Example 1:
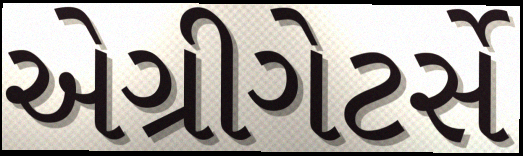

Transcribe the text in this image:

એગ્રીગેટર્સે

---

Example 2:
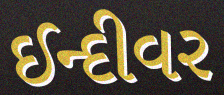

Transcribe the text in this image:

ઈન્દીવર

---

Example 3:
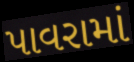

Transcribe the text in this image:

પાવરામાં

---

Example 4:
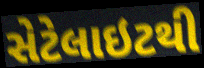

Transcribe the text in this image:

સેટેલાઇટથી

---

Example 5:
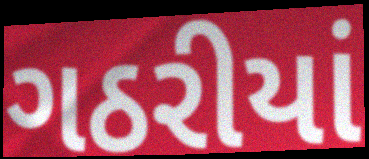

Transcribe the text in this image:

ગઠરીયાં